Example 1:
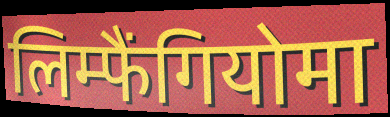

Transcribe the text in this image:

लिम्फैंगियोमा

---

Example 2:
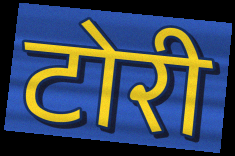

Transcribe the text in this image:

टोरी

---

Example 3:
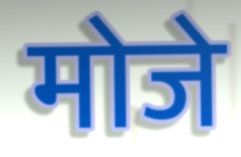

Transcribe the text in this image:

मोजे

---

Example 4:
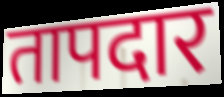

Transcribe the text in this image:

तापदार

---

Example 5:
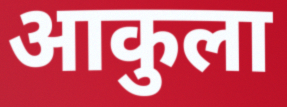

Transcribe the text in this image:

आकुला